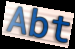
Abt